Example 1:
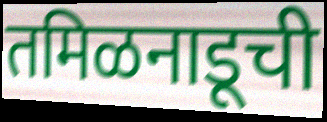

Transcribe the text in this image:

तमिळनाडूची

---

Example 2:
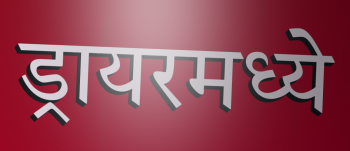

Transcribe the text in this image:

ड्रायरमध्ये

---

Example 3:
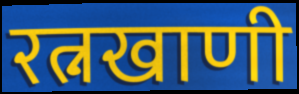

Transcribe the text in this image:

रत्नखाणी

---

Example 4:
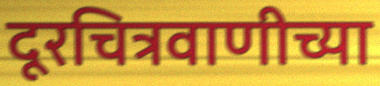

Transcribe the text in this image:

दूरचित्रवाणीच्या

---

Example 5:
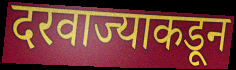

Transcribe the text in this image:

दरवाज्याकडून